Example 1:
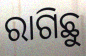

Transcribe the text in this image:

ରାଗିଛୁ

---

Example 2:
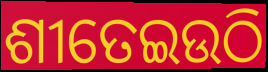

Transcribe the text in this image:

ଶୀତେଇଉଠି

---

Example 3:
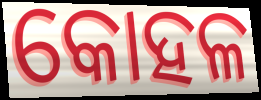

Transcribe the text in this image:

କୋହଳ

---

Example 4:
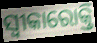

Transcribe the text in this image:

ସ୍ୱୀକାରୋକ୍ତି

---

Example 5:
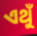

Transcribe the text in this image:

ଏଥୁଁ